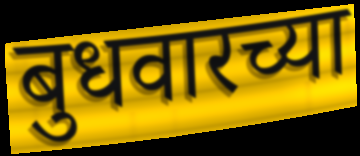
बुधवारच्या